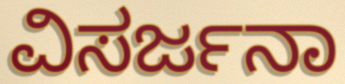
ವಿಸರ್ಜನಾ